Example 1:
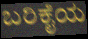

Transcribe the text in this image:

ಬರಿಕೈಯ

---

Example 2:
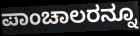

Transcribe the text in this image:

ಪಾಂಚಾಲರನ್ನೂ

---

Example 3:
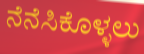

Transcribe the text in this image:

ನೆನೆಸಿಕೊಳ್ಳಲು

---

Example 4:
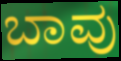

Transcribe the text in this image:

ಬಾವು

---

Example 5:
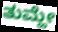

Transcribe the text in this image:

ತುಮ್ಹೇ